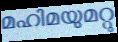
മഹിമയുമറ്റു